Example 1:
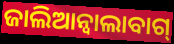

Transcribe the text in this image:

ଜାଲିଆନ୍ଵାଲାବାଗ୍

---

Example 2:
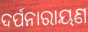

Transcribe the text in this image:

ଦର୍ପନାରାୟଣ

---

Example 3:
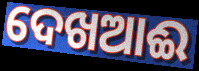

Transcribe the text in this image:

ଦେଖଆଈ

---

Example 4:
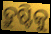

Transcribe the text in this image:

ଦ୍ରୁଷ୍ଟିକୁ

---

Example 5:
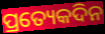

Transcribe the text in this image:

ପ୍ରତ୍ୟେକଦିନ